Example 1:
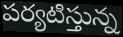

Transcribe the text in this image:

పర్యటిస్తున్న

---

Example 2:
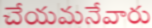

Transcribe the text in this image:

చేయమనేవారు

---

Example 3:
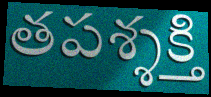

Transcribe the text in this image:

తపశ్శక్తి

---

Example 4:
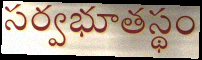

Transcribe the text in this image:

సర్వభూతస్థం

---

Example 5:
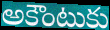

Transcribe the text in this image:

అకౌంటుకు